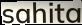
sahita